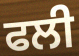
ਫਲੀ